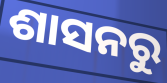
ଶାସନରୁ